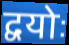
द्वयोः